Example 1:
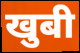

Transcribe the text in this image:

खुबी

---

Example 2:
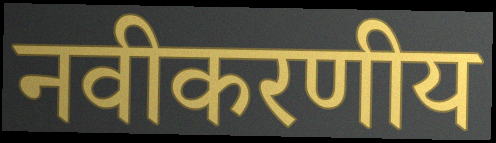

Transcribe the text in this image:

नवीकरणीय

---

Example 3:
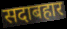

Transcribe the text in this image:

सदाबहार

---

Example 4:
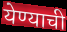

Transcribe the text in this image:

येण्याची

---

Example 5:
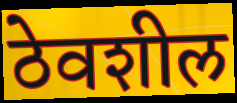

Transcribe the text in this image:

ठेवशील